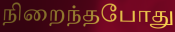
நிறைந்தபோது